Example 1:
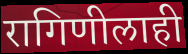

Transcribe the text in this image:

रागिणीलाही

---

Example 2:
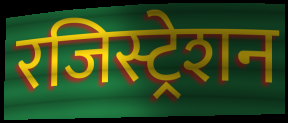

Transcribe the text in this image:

रजिस्ट्रेशन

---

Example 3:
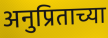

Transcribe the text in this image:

अनुप्रिताच्या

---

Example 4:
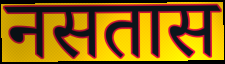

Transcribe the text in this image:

नसतास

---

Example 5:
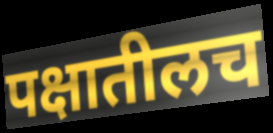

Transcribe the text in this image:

पक्षातीलच